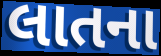
લાતના